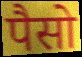
पैसो